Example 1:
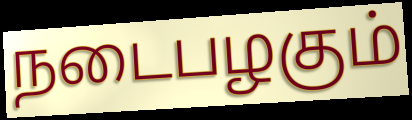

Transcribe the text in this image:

நடைபழகும்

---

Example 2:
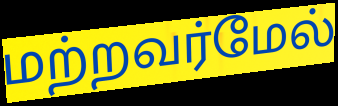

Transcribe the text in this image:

மற்றவர்மேல்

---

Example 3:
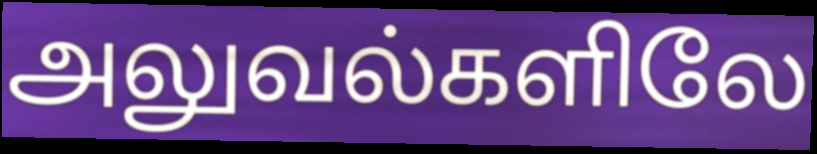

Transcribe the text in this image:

அலுவல்களிலே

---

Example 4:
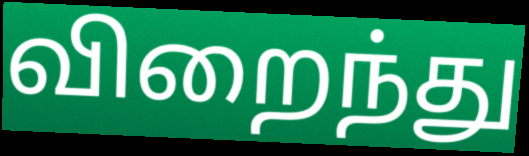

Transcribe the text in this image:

விறைந்து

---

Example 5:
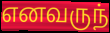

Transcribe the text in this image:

எனவருந்